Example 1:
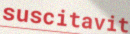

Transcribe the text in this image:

suscitavit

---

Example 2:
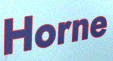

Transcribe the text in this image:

Horne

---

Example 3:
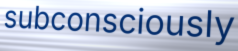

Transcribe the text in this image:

subconsciously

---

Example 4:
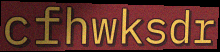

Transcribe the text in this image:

cfhwksdr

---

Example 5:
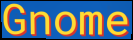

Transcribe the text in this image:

Gnome